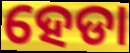
ହେଡା